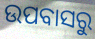
ଉପବାସରୁ